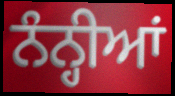
ਨੰਨ੍ਹੀਆਂ